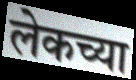
लेकच्या